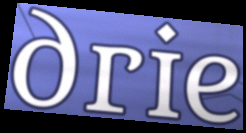
drie